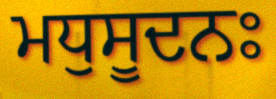
ਮਧੁਸੂਦਨਃ